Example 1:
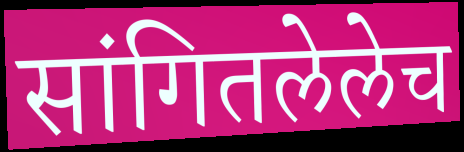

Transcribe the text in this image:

सांगितलेलेच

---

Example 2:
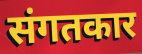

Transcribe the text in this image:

संगतकार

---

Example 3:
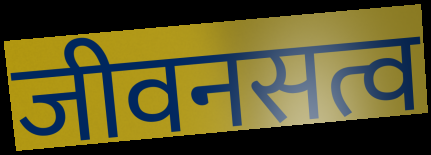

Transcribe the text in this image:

जीवनसत्व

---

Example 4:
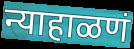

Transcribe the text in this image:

न्याहाळणं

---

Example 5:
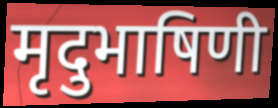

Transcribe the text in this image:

मृदुभाषिणी